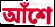
আঁশে